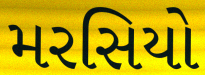
મરસિયો